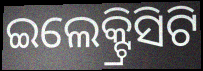
ଇଲେକ୍ଟ୍ରିସିଟି